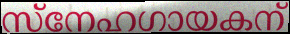
സ്നേഹഗായകന്